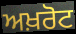
ਅਖ਼ਰੋਟ